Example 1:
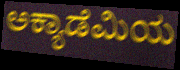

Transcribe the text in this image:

ಅಕ್ಯಾಡೆಮಿಯ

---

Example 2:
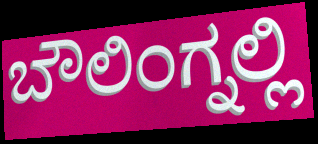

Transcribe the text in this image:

ಬೌಲಿಂಗ್ನಲ್ಲಿ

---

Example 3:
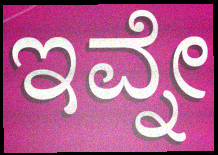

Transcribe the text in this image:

ಇವ್ನೇ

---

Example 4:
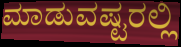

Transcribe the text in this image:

ಮಾಡುವಷ್ಟರಲ್ಲಿ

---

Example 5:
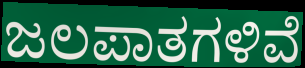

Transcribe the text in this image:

ಜಲಪಾತಗಳಿವೆ